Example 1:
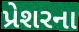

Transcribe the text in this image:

પ્રેશરના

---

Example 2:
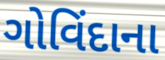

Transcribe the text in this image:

ગોવિંદાના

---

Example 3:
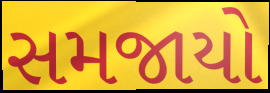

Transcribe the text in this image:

સમજાયો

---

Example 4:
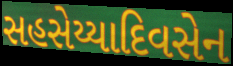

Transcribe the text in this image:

સહસેય્યાદિવસેન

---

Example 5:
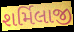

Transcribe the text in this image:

શર્મિલાજી